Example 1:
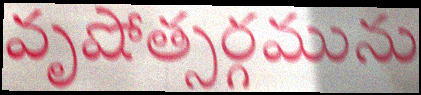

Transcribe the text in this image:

వృషోత్సర్గమును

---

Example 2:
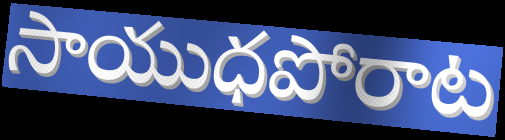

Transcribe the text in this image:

సాయుధపోరాట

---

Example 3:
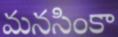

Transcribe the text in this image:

మనసింకా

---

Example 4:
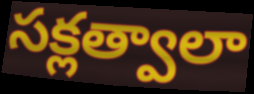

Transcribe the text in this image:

సక్లత్వాలా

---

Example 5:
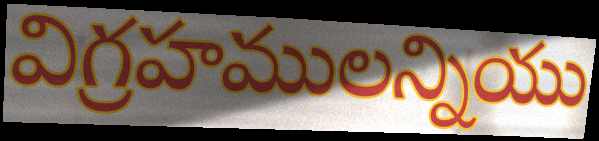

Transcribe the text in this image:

విగ్రహములన్నియు